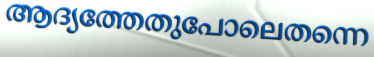
ആദ്യത്തേതുപോലെതന്നെ